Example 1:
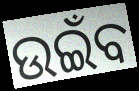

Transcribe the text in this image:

ଉଇଁବ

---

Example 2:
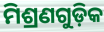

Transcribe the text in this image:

ମିଶ୍ରଣଗୁଡ଼ିକ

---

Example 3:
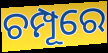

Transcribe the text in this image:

ଚମ୍ପୂରେ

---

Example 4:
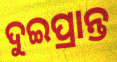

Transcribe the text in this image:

ଦୁଇପ୍ରାନ୍ତ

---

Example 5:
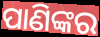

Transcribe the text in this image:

ପାଣିଙ୍କର